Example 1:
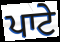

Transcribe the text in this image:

ਪਾਟੇ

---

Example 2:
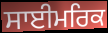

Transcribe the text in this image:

ਸਾਈਮਰਿਕ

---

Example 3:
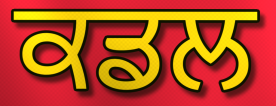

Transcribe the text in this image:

ਕਡਲ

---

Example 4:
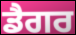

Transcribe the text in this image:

ਡੈਗਰ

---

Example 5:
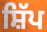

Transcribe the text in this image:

ਸ਼ਿੱਪ